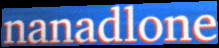
nanadlone